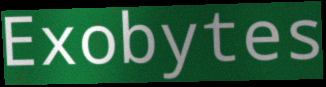
Exobytes